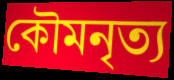
কৌমনৃত্য